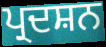
ਪ੍ਰਦਸ਼ਨ